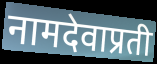
नामदेवाप्रती